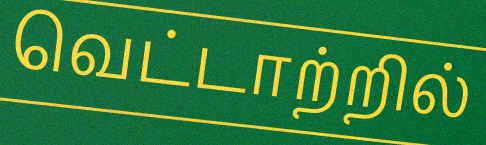
வெட்டாற்றில்